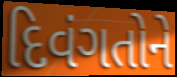
દિવંગતોને